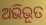
ଅଭିଭୂତ